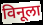
विनूला